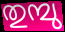
തുമ്പു